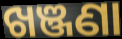
ଖଞ୍ଜଣା